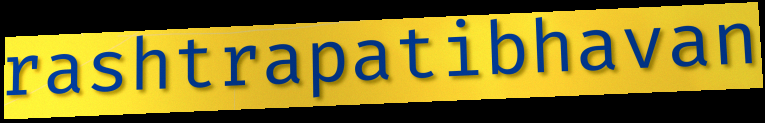
rashtrapatibhavan